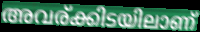
അവര്ക്കിടയിലാണ്